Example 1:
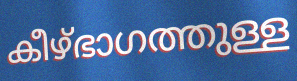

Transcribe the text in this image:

കീഴ്ഭാഗത്തുള്ള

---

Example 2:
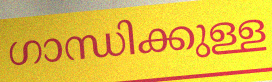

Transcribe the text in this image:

ഗാന്ധിക്കുള്ള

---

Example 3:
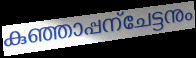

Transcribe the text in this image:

കുഞ്ഞാപ്പന്ചേട്ടനും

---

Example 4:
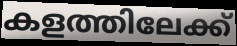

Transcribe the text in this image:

കളത്തിലേക്ക്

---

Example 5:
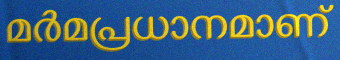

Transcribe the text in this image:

മർമപ്രധാനമാണ്